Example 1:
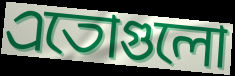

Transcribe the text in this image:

এতোগুলো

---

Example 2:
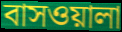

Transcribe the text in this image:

বাসওয়ালা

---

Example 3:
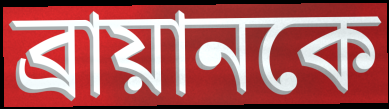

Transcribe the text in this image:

ব্রায়ানকে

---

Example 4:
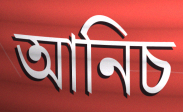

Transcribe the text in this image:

আনিচ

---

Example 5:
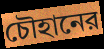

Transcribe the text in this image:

চৌহানের